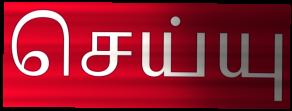
செய்யு